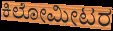
ಕಿಲೋಮೀಟರ